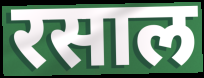
रसाल